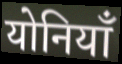
योनियाँ